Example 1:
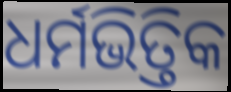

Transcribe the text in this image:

ଧର୍ମଭିତ୍ତିକ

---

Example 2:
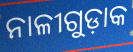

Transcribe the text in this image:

ନାଳୀଗୁଡ଼ାକ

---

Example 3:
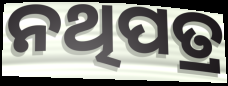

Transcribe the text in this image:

ନଥିପତ୍ର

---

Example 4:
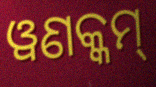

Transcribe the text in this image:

ୱଣକ୍କମ୍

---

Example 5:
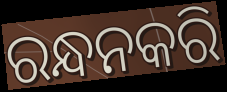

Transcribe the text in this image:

ରନ୍ଧନକରି